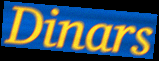
Dinars